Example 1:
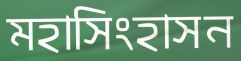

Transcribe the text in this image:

মহাসিংহাসন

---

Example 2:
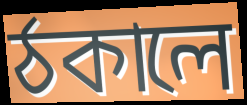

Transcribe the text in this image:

ঠকালে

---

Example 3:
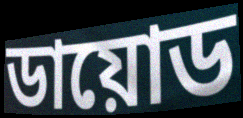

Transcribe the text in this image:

ডায়োড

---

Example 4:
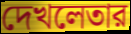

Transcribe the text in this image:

দেখলেতার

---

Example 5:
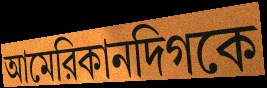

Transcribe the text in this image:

আমেরিকানদিগকে